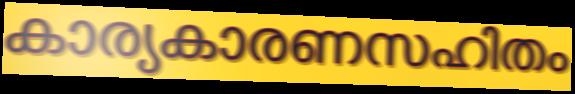
കാര്യകാരണസഹിതം